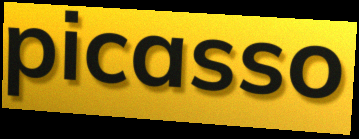
picasso